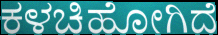
ಕಳಚಿಹೋಗಿದೆ